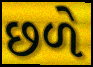
છળે